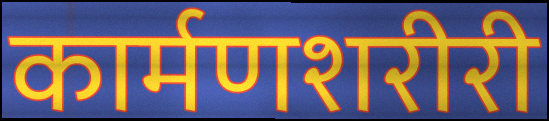
कार्मणशरीरी